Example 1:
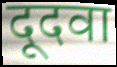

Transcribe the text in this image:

दूदवा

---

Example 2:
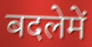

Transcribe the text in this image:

बदलेमें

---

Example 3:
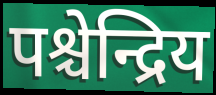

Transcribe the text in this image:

पश्चेन्द्रिय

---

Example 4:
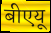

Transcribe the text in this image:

बीएयू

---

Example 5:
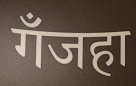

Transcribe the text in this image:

गँजहा